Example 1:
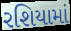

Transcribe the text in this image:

રશિયામાં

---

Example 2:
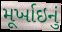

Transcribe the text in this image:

મૂર્ખાઇનું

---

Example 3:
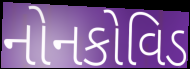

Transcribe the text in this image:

નોનકોવિડ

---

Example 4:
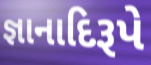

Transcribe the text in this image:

જ્ઞાનાદિરૂપે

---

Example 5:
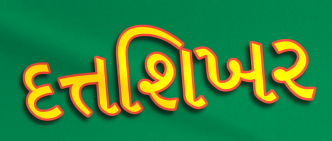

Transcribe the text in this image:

દત્તશિખર